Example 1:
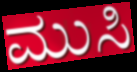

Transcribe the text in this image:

ಮುಸಿ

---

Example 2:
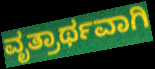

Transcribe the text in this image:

ವೃತ್ರಾರ್ಥವಾಗಿ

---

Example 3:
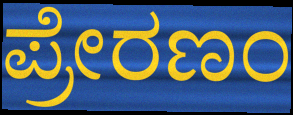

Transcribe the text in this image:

ಪ್ರೇರಣಂ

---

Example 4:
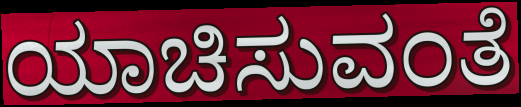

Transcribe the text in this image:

ಯಾಚಿಸುವಂತೆ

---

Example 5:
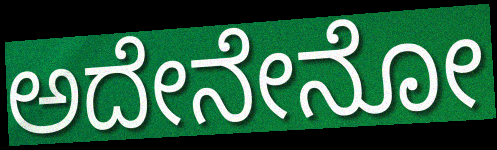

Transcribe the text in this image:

ಅದೇನೇನೋ